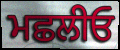
ਮਛਲੀਓ